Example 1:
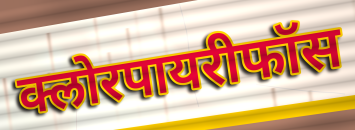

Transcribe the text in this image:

क्लोरपायरीफॉस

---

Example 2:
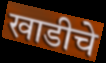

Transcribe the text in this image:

खाडीचे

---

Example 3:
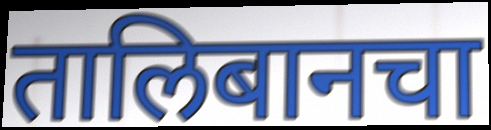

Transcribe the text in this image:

तालिबानचा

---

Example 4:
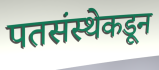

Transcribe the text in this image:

पतसंस्थेकडून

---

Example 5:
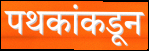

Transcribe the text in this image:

पथकांकडून